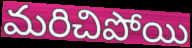
మరిచిపోయి